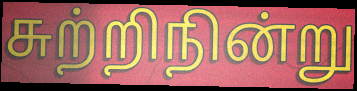
சுற்றிநின்று